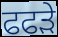
ਫਫਡ਼ੇ